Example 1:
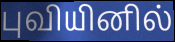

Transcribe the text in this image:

புவியினில்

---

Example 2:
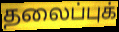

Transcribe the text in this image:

தலைப்புக்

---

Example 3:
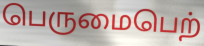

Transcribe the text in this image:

பெருமைபெற்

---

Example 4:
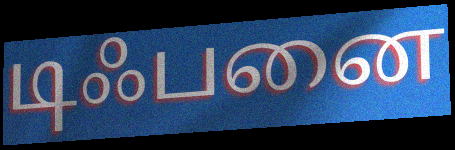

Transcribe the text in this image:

டிஃபனை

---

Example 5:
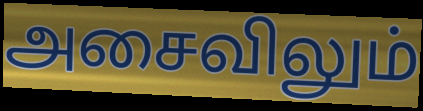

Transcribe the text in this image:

அசைவிலும்